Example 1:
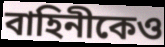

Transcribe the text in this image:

বাহিনীকেও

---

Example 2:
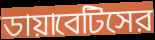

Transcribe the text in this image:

ডায়াবেটিসের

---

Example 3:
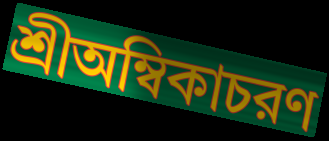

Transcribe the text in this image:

শ্রীঅম্বিকাচরণ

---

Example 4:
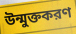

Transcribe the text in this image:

উন্মুক্তকরণ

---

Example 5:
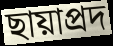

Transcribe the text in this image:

ছায়াপ্রদ